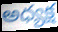
అధ్యక్ష